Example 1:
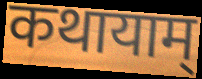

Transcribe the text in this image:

कथायाम्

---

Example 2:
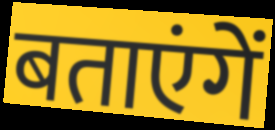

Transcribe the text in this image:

बताएंगें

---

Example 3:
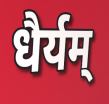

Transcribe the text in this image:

धैर्यम्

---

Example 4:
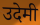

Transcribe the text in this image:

उदेमी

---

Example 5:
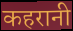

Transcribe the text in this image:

कहरानी